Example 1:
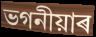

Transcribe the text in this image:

ভগনীয়াৰ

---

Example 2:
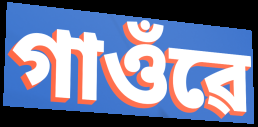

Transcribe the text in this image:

গাওঁৱে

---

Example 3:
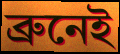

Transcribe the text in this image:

ব্ৰুনেই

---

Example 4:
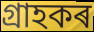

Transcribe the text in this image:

গ্ৰাহকৰ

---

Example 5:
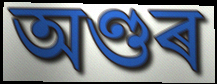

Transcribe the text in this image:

অণ্ডৰ